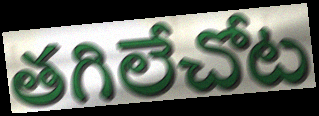
తగిలేచోట